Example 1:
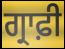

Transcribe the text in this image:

ਗ੍ਰਾਫ਼ੀ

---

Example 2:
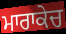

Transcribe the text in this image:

ਮਾਰਾਕੇਚ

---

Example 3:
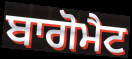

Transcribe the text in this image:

ਬਾਗੋਮੈਟ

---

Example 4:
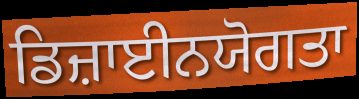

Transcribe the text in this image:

ਡਿਜ਼ਾਈਨਯੋਗਤਾ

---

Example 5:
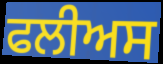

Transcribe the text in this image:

ਫਲੀਅਸ